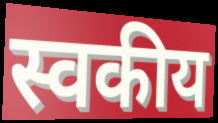
स्वकीय